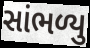
સાંભળ્યુ